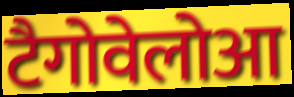
टैगोवेलोआ